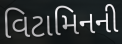
વિટામિનની